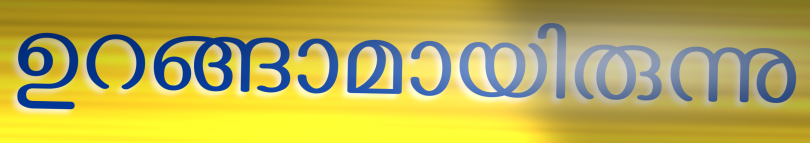
ഉറങ്ങാമായിരുന്നു